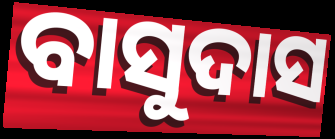
ବାସୁଦାସ